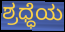
ಶ್ರಧ್ಧೆಯ